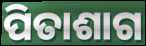
ପିତାଶାଗ